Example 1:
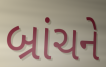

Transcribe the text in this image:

બ્રાંચને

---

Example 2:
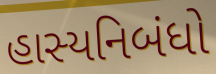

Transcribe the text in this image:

હાસ્યનિબંધો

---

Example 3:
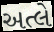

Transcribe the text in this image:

અત્લે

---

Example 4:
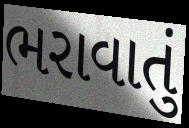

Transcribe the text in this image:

ભરાવાતું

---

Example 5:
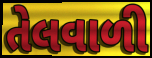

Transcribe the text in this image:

તેલવાળી